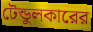
টেন্ডুলকারের